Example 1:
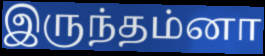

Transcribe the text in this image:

இருந்தம்னா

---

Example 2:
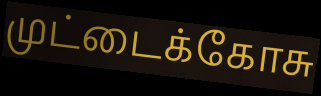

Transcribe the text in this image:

முட்டைக்கோசு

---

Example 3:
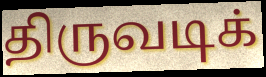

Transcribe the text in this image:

திருவடிக்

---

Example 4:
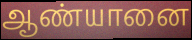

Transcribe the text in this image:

ஆண்யானை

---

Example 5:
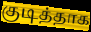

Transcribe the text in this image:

குடித்தாக